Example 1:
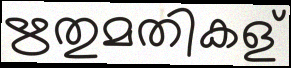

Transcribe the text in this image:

ഋതുമതികള്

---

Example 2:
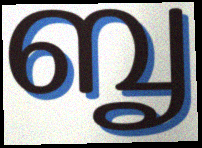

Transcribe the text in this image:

ബൃ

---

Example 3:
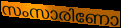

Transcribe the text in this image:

സംസാരിണോ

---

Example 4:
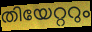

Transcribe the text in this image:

തിയേറ്ററും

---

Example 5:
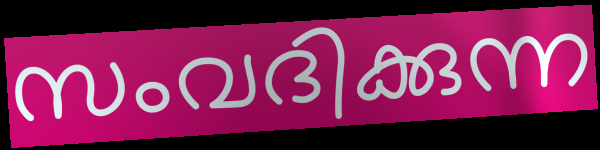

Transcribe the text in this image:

സംവദിക്കുന്ന